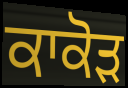
ਕਾਕੋੜ